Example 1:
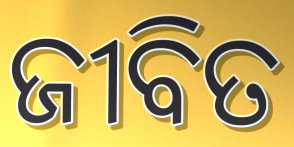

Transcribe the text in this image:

ଜୀବିତ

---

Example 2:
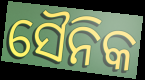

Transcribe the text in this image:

ସୈନିକ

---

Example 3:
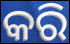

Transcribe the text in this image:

କରି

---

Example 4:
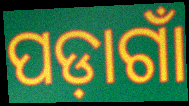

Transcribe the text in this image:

ପଡ଼ାଗାଁ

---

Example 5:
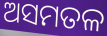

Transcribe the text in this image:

ଅସମତଳ